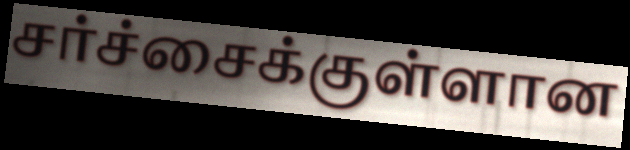
சர்ச்சைக்குள்ளான